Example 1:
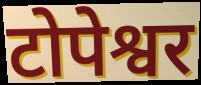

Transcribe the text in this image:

टोपेश्वर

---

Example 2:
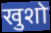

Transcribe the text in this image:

खुशो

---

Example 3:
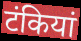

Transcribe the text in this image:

टंकियां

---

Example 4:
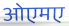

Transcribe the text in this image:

ओएमए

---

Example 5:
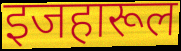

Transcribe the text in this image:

इजहारूल